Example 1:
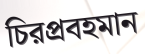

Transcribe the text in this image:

চিরপ্রবহমান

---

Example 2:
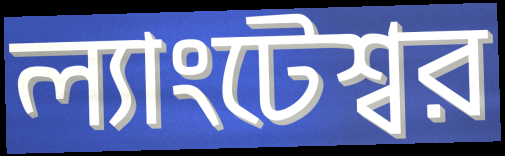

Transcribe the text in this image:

ল্যাংটেশ্বর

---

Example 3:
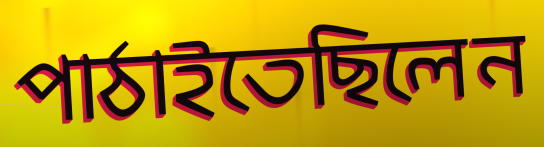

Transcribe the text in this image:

পাঠাইতেছিলেন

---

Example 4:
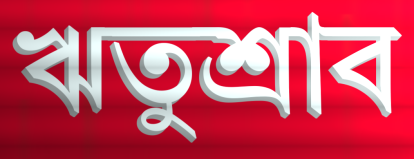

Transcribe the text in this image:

ঋতুশ্রাব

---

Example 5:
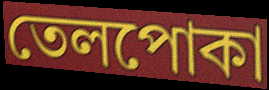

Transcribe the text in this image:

তেলপোকা